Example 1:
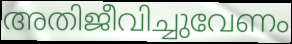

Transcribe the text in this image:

അതിജീവിച്ചുവേണം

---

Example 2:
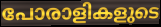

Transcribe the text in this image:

പോരാളികളുടെ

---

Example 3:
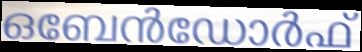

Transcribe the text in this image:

ഒബേൻഡോർഫ്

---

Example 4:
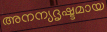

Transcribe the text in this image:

അനന്യദൃഷ്ടമായ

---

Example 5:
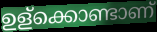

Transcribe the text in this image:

ഉള്ക്കൊണ്ടാണ്